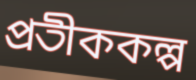
প্রতীককল্প